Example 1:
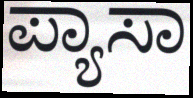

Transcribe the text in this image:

ಪ್ಯಾಸಾ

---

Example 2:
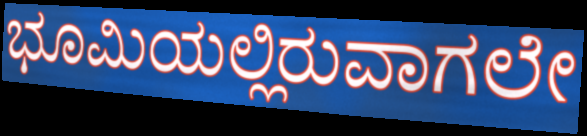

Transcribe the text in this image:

ಭೂಮಿಯಲ್ಲಿರುವಾಗಲೇ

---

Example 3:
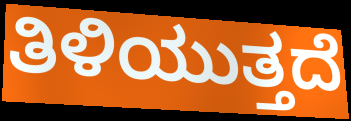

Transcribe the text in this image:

ತಿಳಿಯುತ್ತದೆ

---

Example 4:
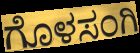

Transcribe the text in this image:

ಗೊಳಸಂಗಿ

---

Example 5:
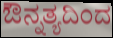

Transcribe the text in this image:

ಔನ್ನತ್ಯದಿಂದ